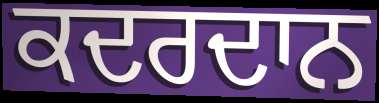
ਕਦਰਦਾਨ